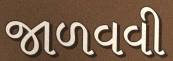
જાળવવી